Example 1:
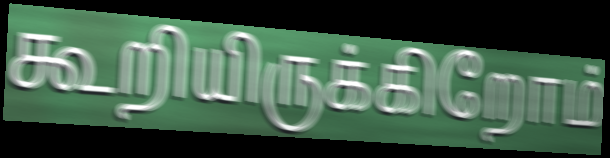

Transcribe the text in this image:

கூறியிருக்கிறோம்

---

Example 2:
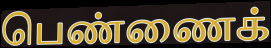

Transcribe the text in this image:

பெண்ணைக்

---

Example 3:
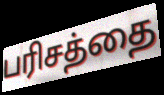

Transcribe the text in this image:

பரிசத்தை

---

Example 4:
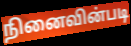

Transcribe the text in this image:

நினைவின்படி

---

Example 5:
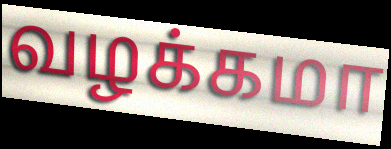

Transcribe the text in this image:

வழக்கமா